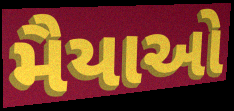
મૈયાઓ